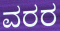
ವರರ